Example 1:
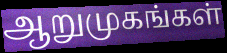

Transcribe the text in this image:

ஆறுமுகங்கள்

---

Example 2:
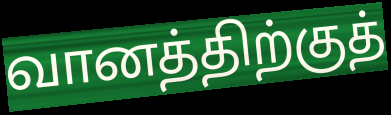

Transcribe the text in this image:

வானத்திற்குத்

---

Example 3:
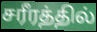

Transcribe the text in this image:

சரீரத்தில்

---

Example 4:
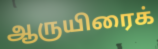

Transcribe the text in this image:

ஆருயிரைக்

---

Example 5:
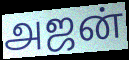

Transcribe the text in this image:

அஜன்